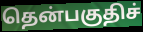
தென்பகுதிச்